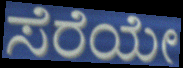
ಸೆರೆಯೇ